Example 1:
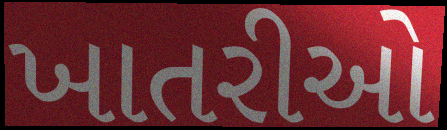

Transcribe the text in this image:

ખાતરીઓ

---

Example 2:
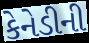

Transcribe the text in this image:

કેનેડીની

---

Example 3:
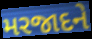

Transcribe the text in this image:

મરજાદને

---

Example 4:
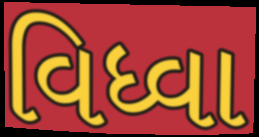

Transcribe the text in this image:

વિધ્વા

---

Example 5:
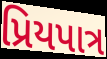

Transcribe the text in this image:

પ્રિયપાત્ર